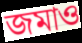
জমাও